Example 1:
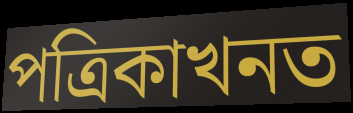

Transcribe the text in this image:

পত্ৰিকাখনত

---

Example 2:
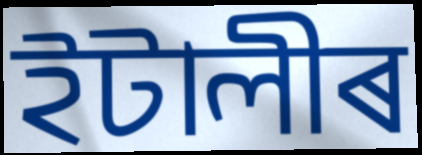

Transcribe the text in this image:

ইটালীৰ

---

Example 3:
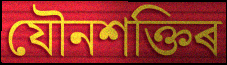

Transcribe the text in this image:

যৌনশক্তিৰ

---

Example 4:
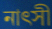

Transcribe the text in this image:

নাৎসী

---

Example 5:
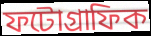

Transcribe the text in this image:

ফটোগ্ৰাফিক